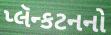
પ્લૅન્કટનનો